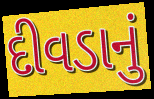
દીવડાનું